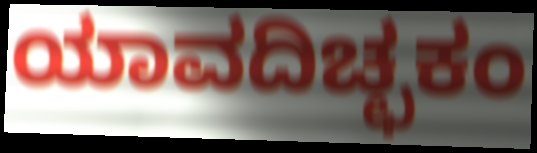
ಯಾವದಿಚ್ಛಕಂ